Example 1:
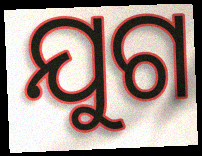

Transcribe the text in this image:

ଯୁଗ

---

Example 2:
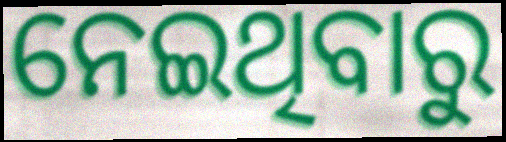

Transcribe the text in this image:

ନେଇଥିବାରୁ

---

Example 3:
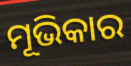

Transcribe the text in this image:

ମୂଭିକାର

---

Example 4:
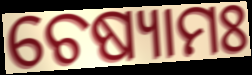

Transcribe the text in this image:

ଚେଷ୍ୟାମଃ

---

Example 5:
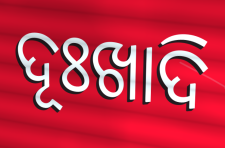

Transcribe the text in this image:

ଦୂଃଖାଦି